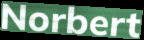
Norbert